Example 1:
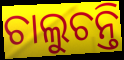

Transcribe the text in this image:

ଚାଲୁଚନ୍ତି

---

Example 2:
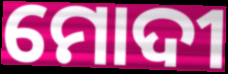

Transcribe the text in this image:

ମୋଦୀ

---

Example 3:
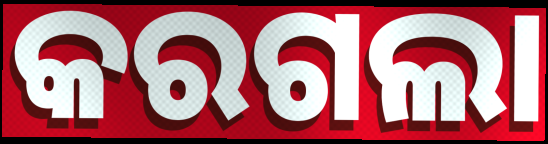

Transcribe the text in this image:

କରଗଲା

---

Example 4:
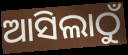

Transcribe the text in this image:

ଆସିଲାଠୁଁ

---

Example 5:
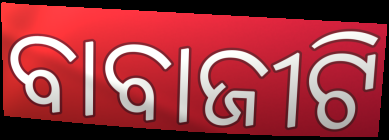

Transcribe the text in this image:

ବାବାଜୀଟି